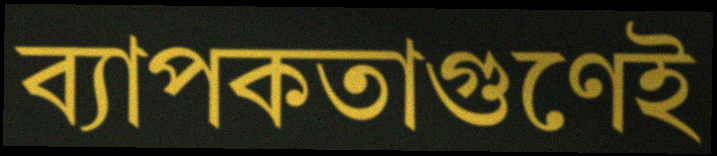
ব্যাপকতাগুণেই